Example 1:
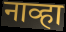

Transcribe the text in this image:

नाव्हा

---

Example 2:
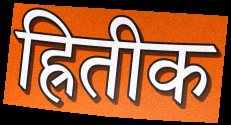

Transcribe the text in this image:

ह्रितीक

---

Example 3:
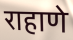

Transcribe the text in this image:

राहाणे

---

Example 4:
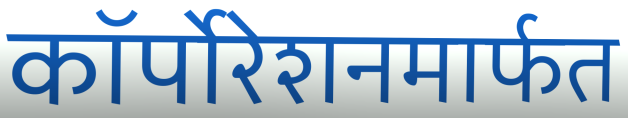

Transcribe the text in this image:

कॉर्पोरेशनमार्फत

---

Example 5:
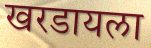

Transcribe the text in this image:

खरडायला